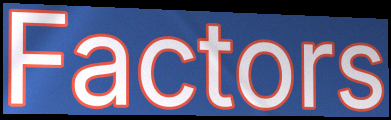
Factors